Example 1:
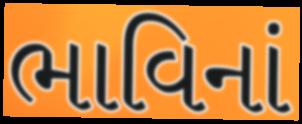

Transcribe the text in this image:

ભાવિનાં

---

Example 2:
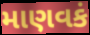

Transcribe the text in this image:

માણવકં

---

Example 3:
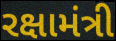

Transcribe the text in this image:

રક્ષામંત્રી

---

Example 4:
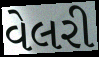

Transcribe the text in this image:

વેલરી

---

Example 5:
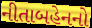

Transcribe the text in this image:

નીતાબહેનનો